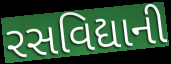
રસવિદ્યાની